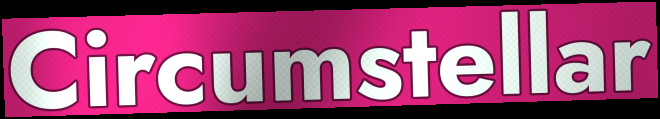
Circumstellar